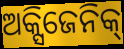
ଅକ୍ସିଜେନିକ୍